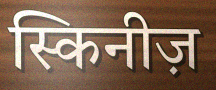
स्किनीज़